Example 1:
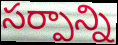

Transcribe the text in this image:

సర్పాన్ని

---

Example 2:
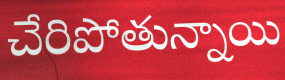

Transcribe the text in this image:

చేరిపోతున్నాయి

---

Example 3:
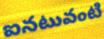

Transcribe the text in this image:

ఐనటువంటి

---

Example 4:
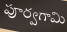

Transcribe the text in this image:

పూర్వగామి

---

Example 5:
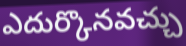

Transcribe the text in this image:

ఎదుర్కొనవచ్చు